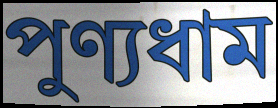
পুণ্যধাম